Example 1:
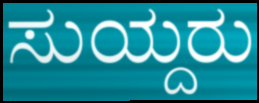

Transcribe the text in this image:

ಸುಯ್ದರು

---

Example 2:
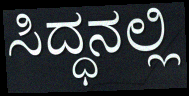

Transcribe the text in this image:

ಸಿದ್ಧನಲ್ಲಿ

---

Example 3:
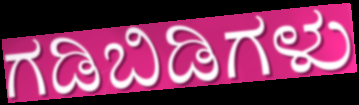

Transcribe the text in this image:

ಗಡಿಬಿಡಿಗಳು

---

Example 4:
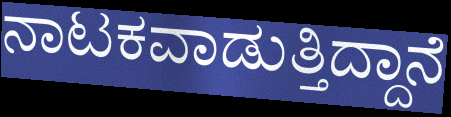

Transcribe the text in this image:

ನಾಟಕವಾಡುತ್ತಿದ್ದಾನೆ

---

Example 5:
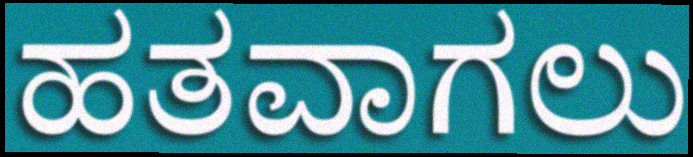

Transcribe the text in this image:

ಹತವಾಗಲು